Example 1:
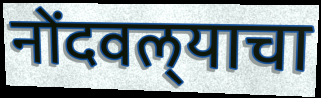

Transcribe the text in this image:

नोंदवल्याचा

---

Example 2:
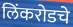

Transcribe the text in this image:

लिंकरोडचे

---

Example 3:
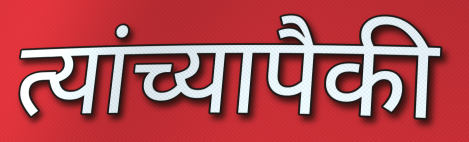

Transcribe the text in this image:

त्यांच्यापैकी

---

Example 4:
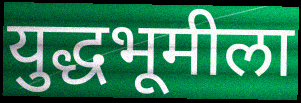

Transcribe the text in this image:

युद्धभूमीला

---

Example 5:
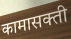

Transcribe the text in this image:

कामासक्ती